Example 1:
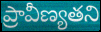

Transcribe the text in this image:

ప్రావీణ్యతని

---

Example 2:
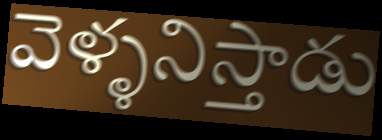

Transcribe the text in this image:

వెళ్ళనిస్తాడు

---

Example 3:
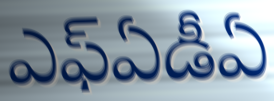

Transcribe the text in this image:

ఎఫ్ఏడీఏ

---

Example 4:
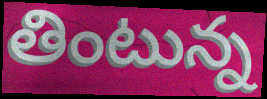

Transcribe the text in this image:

తింటున్న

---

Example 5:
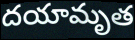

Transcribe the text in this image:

దయామృత